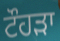
ਟੌਹਡ਼ਾ